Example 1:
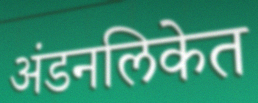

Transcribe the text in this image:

अंडनलिकेत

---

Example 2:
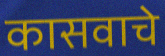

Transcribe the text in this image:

कासवाचे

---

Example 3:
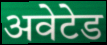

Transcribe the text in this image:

अवेटेड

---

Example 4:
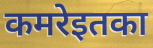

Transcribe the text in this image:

कमरेइतका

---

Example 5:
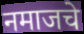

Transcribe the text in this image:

नमाजचे